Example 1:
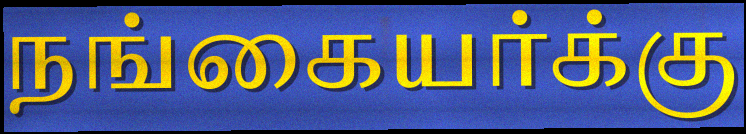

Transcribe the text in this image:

நங்கையர்க்கு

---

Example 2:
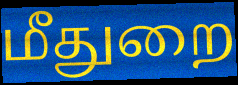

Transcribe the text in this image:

மீதுறை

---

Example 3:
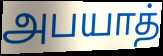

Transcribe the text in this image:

அபயாத்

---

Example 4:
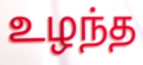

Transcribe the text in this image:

உழந்த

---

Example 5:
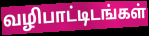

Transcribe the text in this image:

வழிபாட்டிடங்கள்